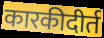
कारकीदीर्त